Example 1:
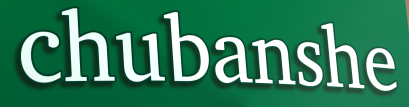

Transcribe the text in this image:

chubanshe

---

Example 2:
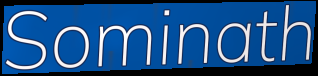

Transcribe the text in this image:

Sominath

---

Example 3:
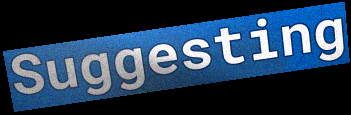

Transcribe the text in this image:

Suggesting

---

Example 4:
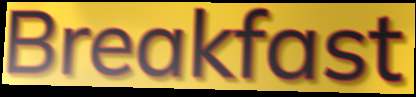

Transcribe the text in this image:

Breakfast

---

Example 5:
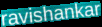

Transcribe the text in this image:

ravishankar